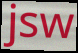
jsw